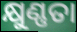
କ୍ଷୁଣ୍ଣତା